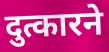
दुत्कारने